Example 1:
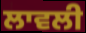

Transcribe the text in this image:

ਲਾਵਲੀ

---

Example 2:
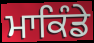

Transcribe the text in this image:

ਮਾਕਿੰਡੇ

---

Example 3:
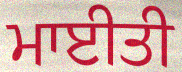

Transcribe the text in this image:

ਮਾਈਤੀ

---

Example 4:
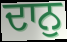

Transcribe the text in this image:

ਦਾਨੁ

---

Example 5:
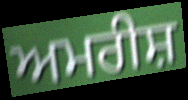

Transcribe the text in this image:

ਅਮਰੀਸ਼